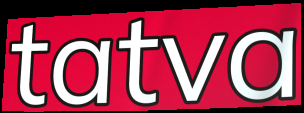
tatva